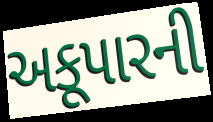
અકૂપારની